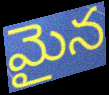
మైన